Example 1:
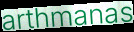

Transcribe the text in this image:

arthmanas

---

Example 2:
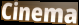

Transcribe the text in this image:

Cinema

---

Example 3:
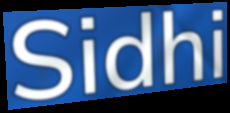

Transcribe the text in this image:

Sidhi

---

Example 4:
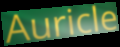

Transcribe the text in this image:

Auricle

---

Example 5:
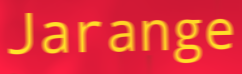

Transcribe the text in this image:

Jarange